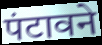
पंटावने